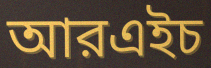
আরএইচ